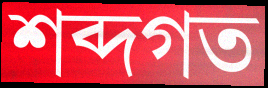
শব্দগত